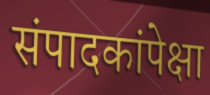
संपादकांपेक्षा